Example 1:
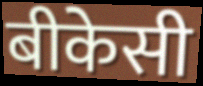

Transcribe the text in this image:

बीकेसी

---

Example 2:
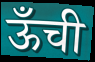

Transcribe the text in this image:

ऊँची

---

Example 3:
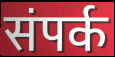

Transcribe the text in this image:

संपर्क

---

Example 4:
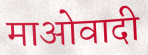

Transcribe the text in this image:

माओवादी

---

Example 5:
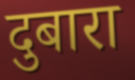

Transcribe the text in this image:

दुबारा